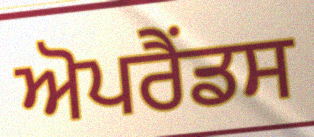
ਅੋਪਰੈਂਡਸ